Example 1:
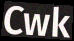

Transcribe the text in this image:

Cwk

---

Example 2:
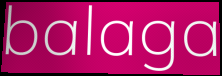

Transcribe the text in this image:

balaga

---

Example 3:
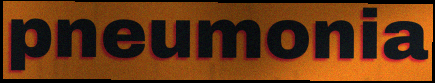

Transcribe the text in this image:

pneumonia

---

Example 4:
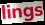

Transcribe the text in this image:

lings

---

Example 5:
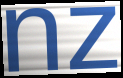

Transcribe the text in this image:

nz